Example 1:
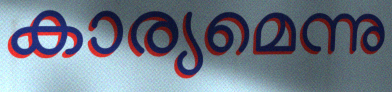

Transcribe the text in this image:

കാര്യമെന്നു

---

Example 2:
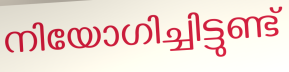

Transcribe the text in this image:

നിയോഗിച്ചിട്ടുണ്ട്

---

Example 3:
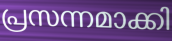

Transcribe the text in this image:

പ്രസന്നമാക്കി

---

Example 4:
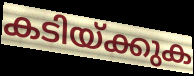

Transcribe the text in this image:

കടിയ്ക്കുക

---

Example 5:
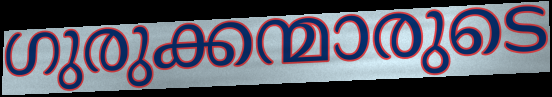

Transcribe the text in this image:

ഗുരുക്കന്മാരുടെ